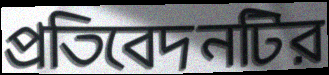
প্রতিবেদনটির